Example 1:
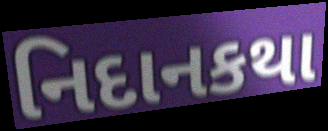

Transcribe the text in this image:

નિદાનકથા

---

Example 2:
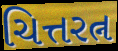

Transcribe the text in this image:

ચિત્તરત્ન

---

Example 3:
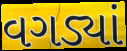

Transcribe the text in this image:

વગડ્યાં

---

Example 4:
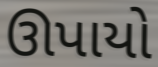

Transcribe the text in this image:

ઊપાયો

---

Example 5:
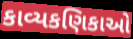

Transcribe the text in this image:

કાવ્યકણિકાઓ